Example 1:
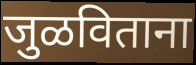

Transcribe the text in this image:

जुळविताना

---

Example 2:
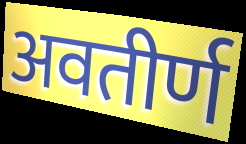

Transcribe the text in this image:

अवतीर्ण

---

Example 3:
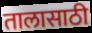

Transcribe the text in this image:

तालासाठी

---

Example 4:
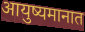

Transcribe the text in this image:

आयुष्यमानात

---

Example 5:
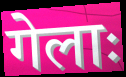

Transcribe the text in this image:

गेलाः